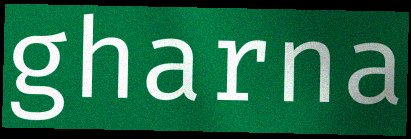
gharna